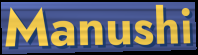
Manushi